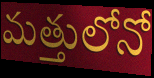
మత్తులోనో